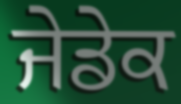
ਜੇਡੇਕ